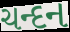
ચન્દન